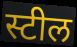
स्टील